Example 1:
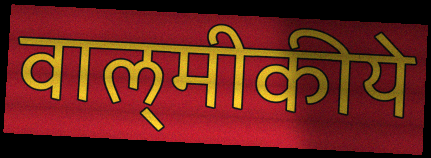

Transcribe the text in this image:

वाल्मीकीये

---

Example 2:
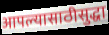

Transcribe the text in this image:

आपल्यासाठीसुद्धा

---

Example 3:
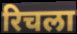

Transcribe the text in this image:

रिचला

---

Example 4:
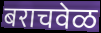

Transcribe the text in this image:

बराचवेळ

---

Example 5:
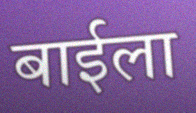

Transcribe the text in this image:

बाईला